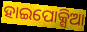
ହାଇପୋକ୍ସିଆ